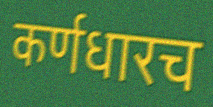
कर्णधारच